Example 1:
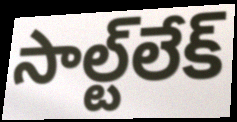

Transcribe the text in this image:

సాల్ట్‌లేక్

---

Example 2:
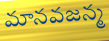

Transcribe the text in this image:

మానవజన్మ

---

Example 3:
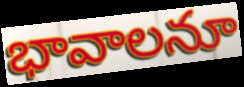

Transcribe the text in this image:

భావాలనూ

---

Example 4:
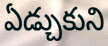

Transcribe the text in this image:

ఏడ్చుకుని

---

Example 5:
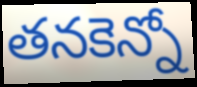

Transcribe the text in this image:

తనకెన్నో